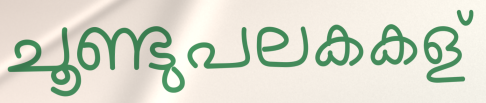
ചൂണ്ടുപലകകള്